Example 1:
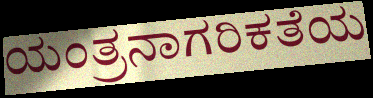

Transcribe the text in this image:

ಯಂತ್ರನಾಗರಿಕತೆಯ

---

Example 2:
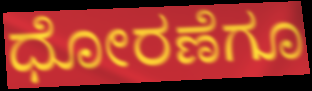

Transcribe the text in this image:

ಧೋರಣೆಗೂ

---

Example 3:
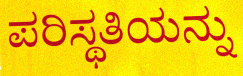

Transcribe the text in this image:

ಪರಿಸ್ಥತಿಯನ್ನು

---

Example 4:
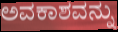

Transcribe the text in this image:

ಅವಕಾಶವನ್ನು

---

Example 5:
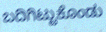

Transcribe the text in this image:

ಬದಿಗಿಟ್ಟುಕೊಂಡು